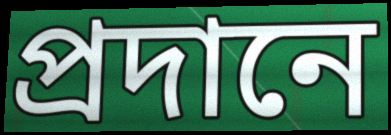
প্ৰদানে